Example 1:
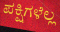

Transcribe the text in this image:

ಪಕ್ಷಿಗಳೆಲ್ಲ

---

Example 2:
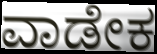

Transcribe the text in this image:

ವಾಡೇಕ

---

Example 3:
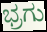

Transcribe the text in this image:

ಭ್ರಗು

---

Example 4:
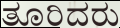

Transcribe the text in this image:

ತೂರಿದರು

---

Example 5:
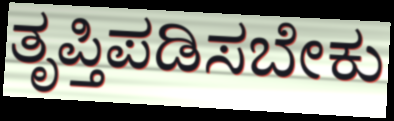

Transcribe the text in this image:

ತೃಪ್ತಿಪಡಿಸಬೇಕು